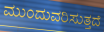
ಮುಂದುವರಿಸುತ್ತದೆ